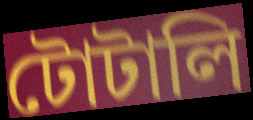
টোটালি